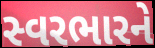
સ્વરભારને